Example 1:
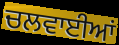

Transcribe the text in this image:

ਚਲਵਾਈਆਂ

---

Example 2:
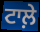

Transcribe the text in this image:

ਟਾਲ਼ੇ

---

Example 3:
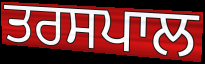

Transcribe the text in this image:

ਤਰਸਪਾਲ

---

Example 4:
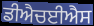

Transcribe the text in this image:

ਡੀਐਚਈਐਸ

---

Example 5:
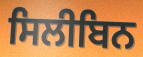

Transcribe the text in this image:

ਸਿਲੀਬਿਨ